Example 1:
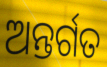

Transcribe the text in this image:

ଅନ୍ତର୍ଗତ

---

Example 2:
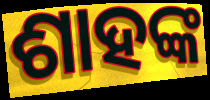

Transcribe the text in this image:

ଶାହଙ୍କ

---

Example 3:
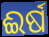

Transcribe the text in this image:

ଈର୍ଷ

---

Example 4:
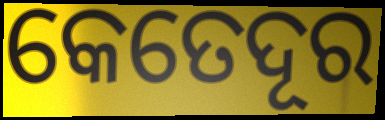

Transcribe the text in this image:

କେତେଦୂର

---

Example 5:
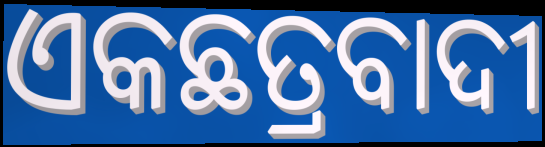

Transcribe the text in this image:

ଏକଛତ୍ରବାଦୀ